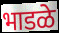
भाडळे